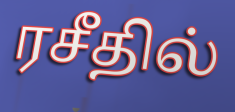
ரசீதில்